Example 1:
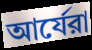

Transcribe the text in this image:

আর্যেরা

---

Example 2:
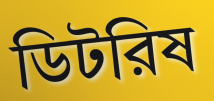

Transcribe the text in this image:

ডিটরিষ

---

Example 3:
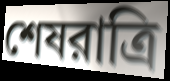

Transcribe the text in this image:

শেষরাত্রি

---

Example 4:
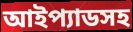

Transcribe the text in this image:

আইপ্যাডসহ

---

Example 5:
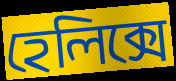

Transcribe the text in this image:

হেলিক্সে